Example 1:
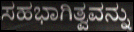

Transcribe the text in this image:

ಸಹಭಾಗಿತ್ವವನ್ನು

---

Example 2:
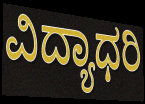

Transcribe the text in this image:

ವಿದ್ಯಾಧರಿ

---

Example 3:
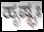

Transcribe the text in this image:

ಹೃಷ್ಟಃ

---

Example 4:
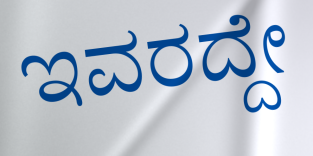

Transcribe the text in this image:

ಇವರದ್ದೇ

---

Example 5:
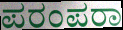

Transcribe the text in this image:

ಪರಂಪರಾ